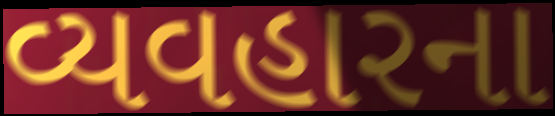
વ્યવહારના